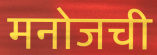
मनोजची